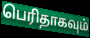
பெரிதாகவும்